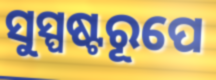
ସୁସ୍ପଷ୍ଟରୂପେ